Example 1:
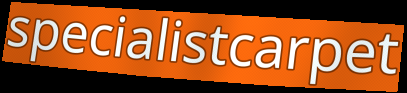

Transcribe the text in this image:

specialistcarpet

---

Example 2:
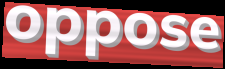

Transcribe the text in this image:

oppose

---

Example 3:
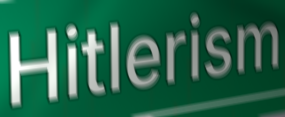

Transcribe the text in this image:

Hitlerism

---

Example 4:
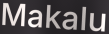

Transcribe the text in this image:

Makalu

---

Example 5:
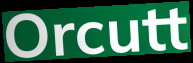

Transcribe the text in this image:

Orcutt